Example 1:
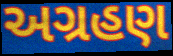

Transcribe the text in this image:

અગ્રહણ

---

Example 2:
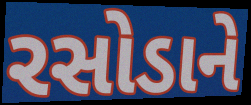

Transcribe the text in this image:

રસોડાને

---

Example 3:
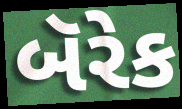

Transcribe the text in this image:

બૅરેક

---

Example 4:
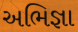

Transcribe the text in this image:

અભિજ્ઞા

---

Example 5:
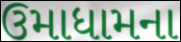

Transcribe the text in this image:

ઉમાધામના